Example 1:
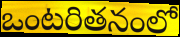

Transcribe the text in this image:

ఒంటరితనంలో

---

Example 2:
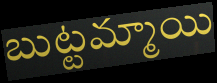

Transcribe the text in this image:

బుట్టమ్మాయి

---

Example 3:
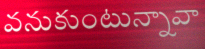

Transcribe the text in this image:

వనుకుంటున్నావా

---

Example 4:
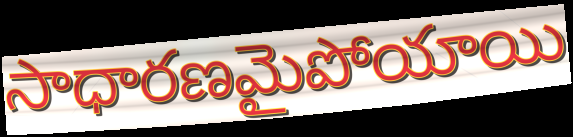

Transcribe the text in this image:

సాధారణమైపోయాయి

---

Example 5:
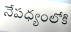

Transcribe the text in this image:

నేపధ్యంలోకి